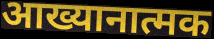
आख्यानात्मक